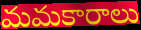
మమకారాలు